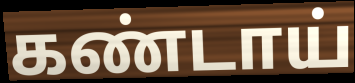
கண்டாய்